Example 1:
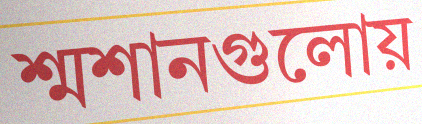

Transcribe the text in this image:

শ্মশানগুলোয়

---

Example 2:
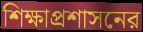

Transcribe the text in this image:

শিক্ষাপ্রশাসনের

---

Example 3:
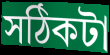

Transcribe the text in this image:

সঠিকটা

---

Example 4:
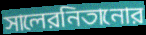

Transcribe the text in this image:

সালেরনিতানোর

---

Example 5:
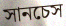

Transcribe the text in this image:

সানচেস